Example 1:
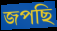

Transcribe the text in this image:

জপছি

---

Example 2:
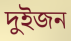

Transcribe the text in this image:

দুইজন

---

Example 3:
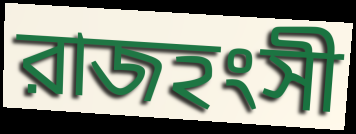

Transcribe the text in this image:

রাজহংসী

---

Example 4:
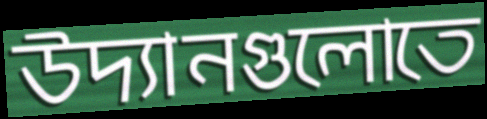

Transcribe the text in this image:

উদ্যানগুলোতে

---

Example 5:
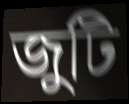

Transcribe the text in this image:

জুটি